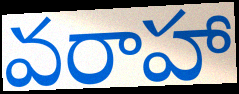
వరాహా